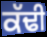
ਕੱਢੀ